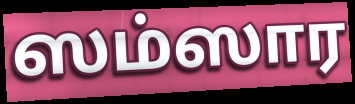
ஸம்ஸார